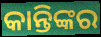
କାନ୍ତିଙ୍କର